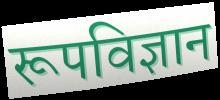
रूपविज्ञान